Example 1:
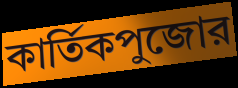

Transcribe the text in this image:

কার্তিকপুজোর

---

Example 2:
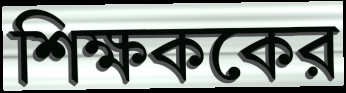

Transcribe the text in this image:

শিক্ষককের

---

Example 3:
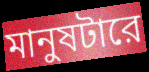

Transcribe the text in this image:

মানুষটারে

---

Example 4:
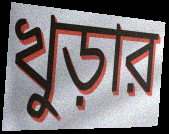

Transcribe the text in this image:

খুড়ার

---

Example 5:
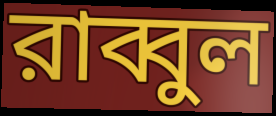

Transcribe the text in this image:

রাব্বুল